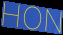
HON